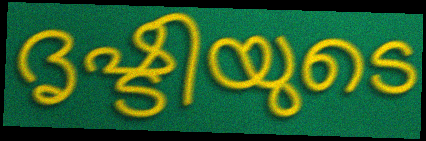
ദൃഷ്ടിയുടെ